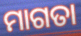
ମାଗତା